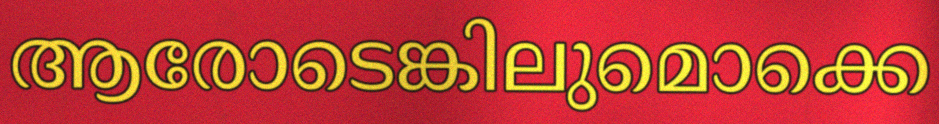
ആരോടെങ്കിലുമൊക്കെ